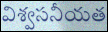
విశ్వసనీయత